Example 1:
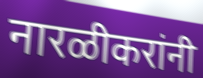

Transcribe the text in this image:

नारळीकरांनी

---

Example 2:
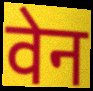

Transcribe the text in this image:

वेन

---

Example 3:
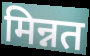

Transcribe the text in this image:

मिन्नत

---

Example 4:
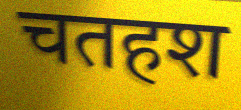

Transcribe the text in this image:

चतहश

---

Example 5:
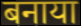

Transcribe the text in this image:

बनाया